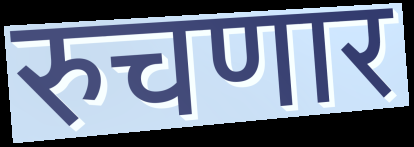
रुचणार